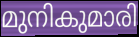
മുനികുമാരി